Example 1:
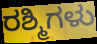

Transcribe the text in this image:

ರಶ್ಮಿಗಳು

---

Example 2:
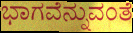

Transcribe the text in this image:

ಭಾಗವೆನ್ನುವಂತೆ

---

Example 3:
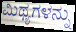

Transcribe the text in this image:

ಮಿಥ್ಯಗಳನ್ನು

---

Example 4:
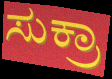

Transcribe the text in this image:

ಸುಕ್ರಾ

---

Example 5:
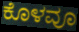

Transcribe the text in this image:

ಕೊಳವೂ